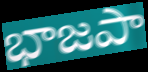
భాజపా